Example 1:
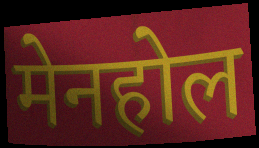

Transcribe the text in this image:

मेनहोल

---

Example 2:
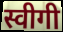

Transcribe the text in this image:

स्वीगी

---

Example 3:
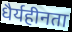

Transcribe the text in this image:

धैर्यहीनता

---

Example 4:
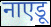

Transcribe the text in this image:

नाएडू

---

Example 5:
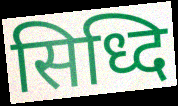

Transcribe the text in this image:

सिध्दि